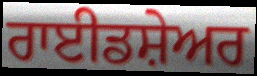
ਰਾਈਡਸ਼ੇਅਰ